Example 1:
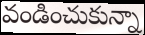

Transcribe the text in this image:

వండించుకున్నా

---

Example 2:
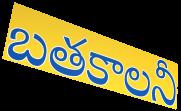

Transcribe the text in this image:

బతకాలనీ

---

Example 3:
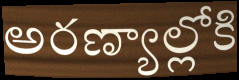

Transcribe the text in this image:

అరణ్యాల్లోకి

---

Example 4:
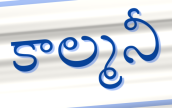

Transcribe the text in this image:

కాల్మనీ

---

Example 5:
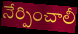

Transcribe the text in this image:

నేర్పించాలీ